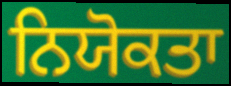
ਨਿਯੋਕਤਾ